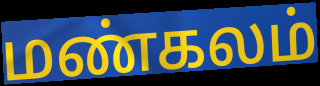
மண்கலம்